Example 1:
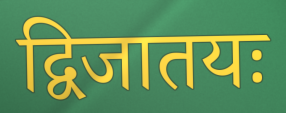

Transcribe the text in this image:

द्विजातयः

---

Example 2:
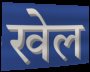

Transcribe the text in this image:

खेल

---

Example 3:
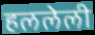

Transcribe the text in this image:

हललेली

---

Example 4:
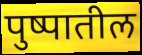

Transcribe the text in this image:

पुष्पातील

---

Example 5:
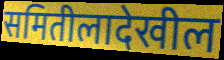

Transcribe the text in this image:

समितीलादेखील